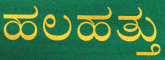
ಹಲಹತ್ತು